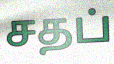
சதப்